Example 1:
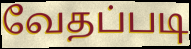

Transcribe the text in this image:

வேதப்படி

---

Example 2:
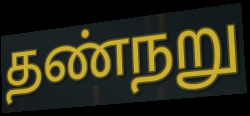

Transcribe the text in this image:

தண்நறு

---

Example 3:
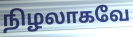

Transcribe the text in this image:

நிழலாகவே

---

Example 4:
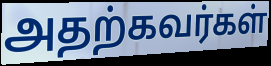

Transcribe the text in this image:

அதற்கவர்கள்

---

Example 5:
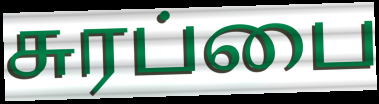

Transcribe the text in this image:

சுரப்பை